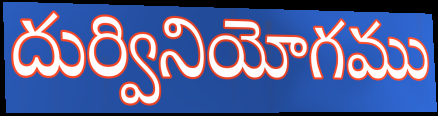
దుర్వినియోగము